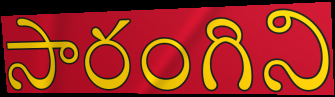
సారంగిని